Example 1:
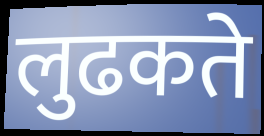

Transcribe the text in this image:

लुढकते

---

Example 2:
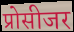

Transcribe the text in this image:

प्रोसीजर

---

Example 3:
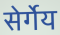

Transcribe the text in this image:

सेर्गेय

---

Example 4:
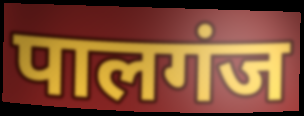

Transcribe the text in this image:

पालगंज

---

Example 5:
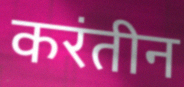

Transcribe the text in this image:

करंतीन